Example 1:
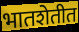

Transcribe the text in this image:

भातशेतीत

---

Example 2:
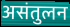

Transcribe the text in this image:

असंतुलन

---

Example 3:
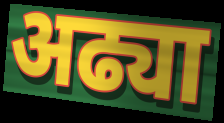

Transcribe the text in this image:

अढ्या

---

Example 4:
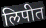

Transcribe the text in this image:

लिपीत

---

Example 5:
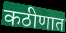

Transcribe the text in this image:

कठीणात